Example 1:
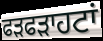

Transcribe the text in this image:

ਫੜਫੜਾਹਟਾਂ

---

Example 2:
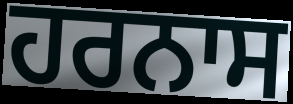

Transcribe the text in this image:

ਹਰਨਾਸ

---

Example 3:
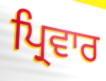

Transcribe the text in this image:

ਪ੍ਰਿਵਾਰ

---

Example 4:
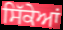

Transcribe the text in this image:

ਸਿੱਕੇਆਂ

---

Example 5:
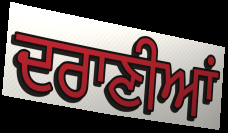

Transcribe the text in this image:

ਦਰਾਣੀਆਂ